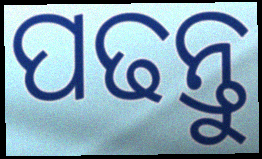
ପଢନ୍ତୁ